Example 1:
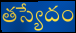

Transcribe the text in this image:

తస్యేదం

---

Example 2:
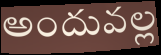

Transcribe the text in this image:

అందువల్ల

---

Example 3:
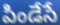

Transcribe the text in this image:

పిండేసే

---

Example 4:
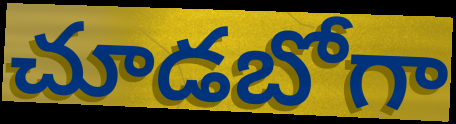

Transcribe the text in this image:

చూడబోగా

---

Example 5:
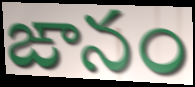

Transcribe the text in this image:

ఙానం